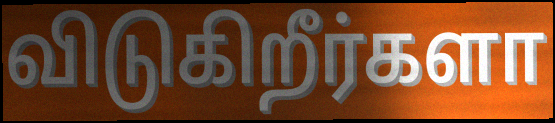
விடுகிறீர்களா